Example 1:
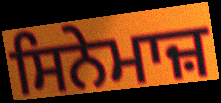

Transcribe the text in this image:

ਸਿਨੇਮਾਜ਼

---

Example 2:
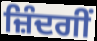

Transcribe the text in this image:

ਜ਼ਿੰਦਗੀਂ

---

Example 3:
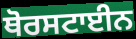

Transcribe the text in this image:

ਥੋਰਸਟਾਈਨ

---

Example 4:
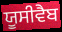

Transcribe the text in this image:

ਯੂਸੀਵੈਬ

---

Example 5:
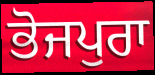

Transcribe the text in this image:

ਭੋਜਪੁਰਾ